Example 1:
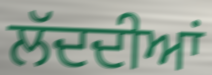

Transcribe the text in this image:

ਲੱਦਦੀਆਂ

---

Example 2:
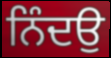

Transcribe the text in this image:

ਨਿੰਦਉ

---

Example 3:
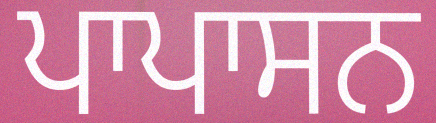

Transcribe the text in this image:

ਪਾਪਾਸਨ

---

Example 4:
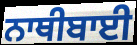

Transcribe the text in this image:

ਨਾਥੀਬਾਈ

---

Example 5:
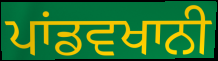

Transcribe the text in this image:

ਪਾਂਡਵਖਾਨੀ